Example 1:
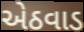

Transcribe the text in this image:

એઠવાડ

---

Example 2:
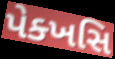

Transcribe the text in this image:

પેક્ખસિ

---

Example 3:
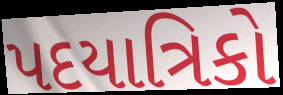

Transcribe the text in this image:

પદયાત્રિકો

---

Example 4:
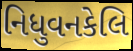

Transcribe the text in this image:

નિધુવનકેલિ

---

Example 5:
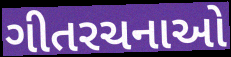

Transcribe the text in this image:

ગીતરચનાઓ